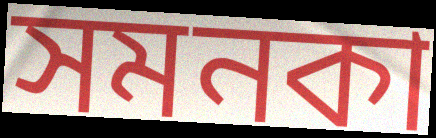
সমনকা